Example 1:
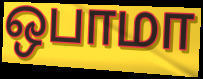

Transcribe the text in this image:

ஒபாமா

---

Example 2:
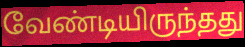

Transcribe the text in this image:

வேண்டியிருந்தது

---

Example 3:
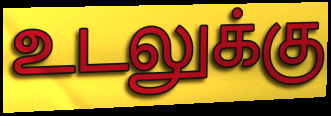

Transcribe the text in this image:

உடலுக்கு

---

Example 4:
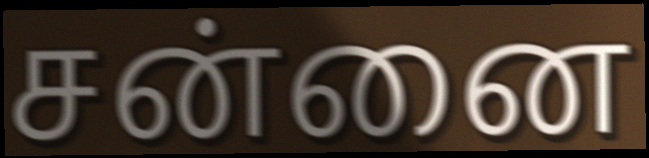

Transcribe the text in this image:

சன்னை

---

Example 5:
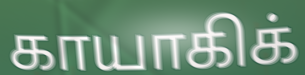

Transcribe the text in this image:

காயாகிக்